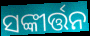
ସଙ୍କୀର୍ତ୍ତନ